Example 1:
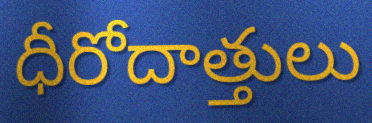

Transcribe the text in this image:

ధీరోదాత్తులు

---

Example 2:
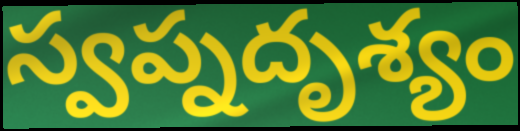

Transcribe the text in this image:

స్వప్నదృశ్యం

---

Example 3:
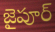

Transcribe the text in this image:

జైపూర్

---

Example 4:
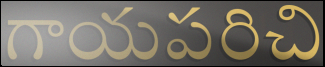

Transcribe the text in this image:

గాయపరిచి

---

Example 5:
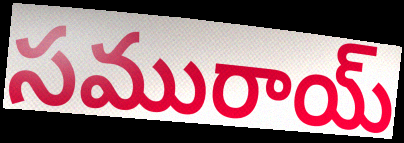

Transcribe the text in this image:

సమురాయ్